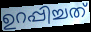
ഉറപ്പിച്ചത്